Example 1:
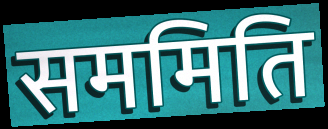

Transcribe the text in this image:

सममिति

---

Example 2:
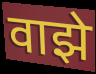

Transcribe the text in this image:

वाझे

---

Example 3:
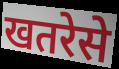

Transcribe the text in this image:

खतरेसे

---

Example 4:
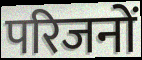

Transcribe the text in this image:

परिजनों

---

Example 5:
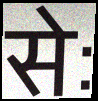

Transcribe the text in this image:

सेः